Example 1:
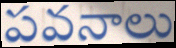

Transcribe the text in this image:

పవనాలు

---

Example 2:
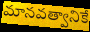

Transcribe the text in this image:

మానవత్వానికే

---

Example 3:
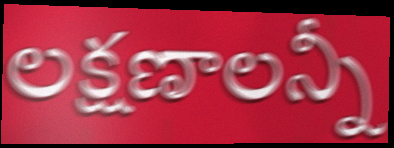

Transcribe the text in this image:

లక్షణాలన్నీ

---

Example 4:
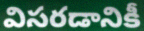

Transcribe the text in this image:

విసరడానికీ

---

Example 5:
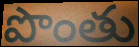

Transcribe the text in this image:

పొంతు